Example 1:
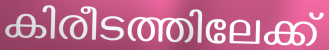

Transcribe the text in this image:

കിരീടത്തിലേക്ക്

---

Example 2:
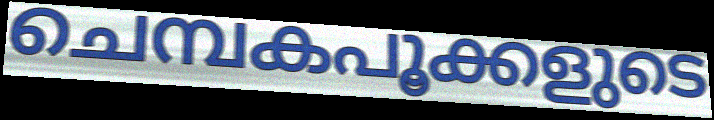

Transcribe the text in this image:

ചെമ്പകപൂക്കളുടെ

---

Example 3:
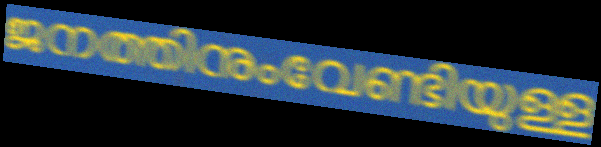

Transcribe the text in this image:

ജനത്തിനുംവേണ്ടിയുള്ള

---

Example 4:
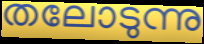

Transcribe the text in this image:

തലോടുന്നു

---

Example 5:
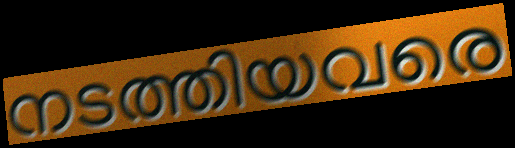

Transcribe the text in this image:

നടത്തിയവരെ